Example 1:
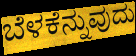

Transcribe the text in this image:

ಬೆಳಕೆನ್ನುವುದು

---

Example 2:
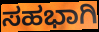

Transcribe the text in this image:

ಸಹಭಾಗಿ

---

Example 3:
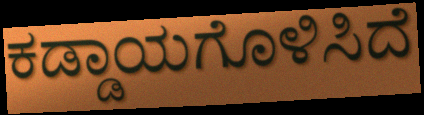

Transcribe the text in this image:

ಕಡ್ಡಾಯಗೊಳಿಸಿದೆ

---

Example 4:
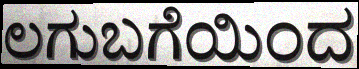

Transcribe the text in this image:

ಲಗುಬಗೆಯಿಂದ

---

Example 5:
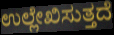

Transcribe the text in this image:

ಉಲ್ಲೇಖಿಸುತ್ತದೆ